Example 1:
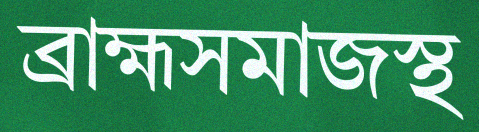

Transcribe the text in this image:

ব্রাহ্মসমাজস্থ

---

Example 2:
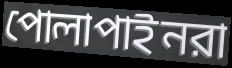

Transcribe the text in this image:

পোলাপাইনরা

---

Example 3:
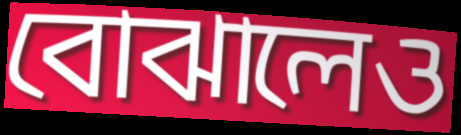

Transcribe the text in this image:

বোঝালেও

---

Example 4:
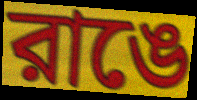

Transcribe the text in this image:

রাঙে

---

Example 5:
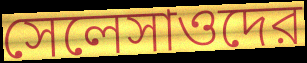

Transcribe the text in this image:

সেলেসাওদের